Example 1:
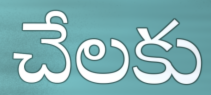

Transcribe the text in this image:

చేలకు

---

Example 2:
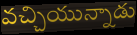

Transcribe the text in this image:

వచ్చియున్నాడు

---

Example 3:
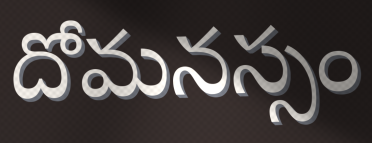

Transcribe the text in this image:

దోమనస్సం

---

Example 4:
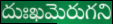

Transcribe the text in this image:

దుఃఖమెరుగని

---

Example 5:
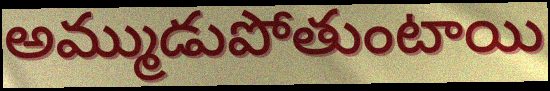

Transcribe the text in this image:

అమ్ముడుపోతుంటాయి